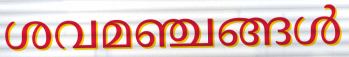
ശവമഞ്ചങ്ങൾ